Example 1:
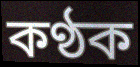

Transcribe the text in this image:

কণ্ঠক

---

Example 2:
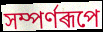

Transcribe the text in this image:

সম্পৰ্ণৰূপে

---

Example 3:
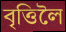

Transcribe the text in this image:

বৃত্তিলৈ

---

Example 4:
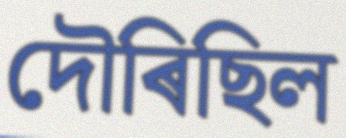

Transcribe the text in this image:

দৌৰিছিল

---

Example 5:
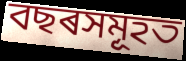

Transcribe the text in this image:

বছৰসমূহত